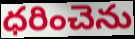
ధరించెను